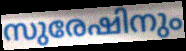
സുരേഷിനും